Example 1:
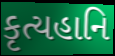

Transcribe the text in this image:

કૃત્યહાનિ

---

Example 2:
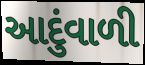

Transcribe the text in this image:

આદુંવાળી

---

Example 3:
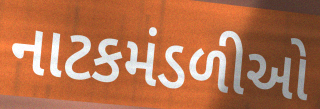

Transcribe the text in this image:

નાટકમંડળીઓ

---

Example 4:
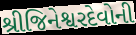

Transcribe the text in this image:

શ્રીજિનેશ્વરદેવોની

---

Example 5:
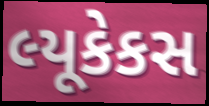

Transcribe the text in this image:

લ્યૂકેકસ